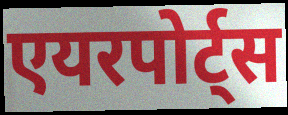
एयरपोर्ट्स